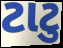
ટાટુ